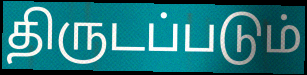
திருடப்படும்